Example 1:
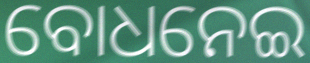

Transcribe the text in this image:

ବୋଧନେଇ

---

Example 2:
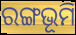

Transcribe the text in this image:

ରଙ୍ଗଭୂମି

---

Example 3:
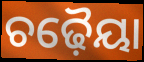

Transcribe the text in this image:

ଚଢ଼ୈୟା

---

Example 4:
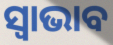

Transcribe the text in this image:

ସ୍ୱାଭାବ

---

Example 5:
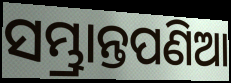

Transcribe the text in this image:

ସମ୍ଭ୍ରାନ୍ତପଣିଆ